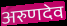
अरुणदेव